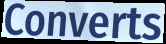
Converts